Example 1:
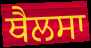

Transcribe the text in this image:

ਥੈਲਸਾ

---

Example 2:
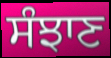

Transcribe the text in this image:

ਸੰਝਾਣ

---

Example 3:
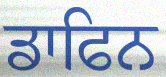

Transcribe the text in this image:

ਡਾਫਿਨ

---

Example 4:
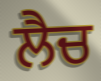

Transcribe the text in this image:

ਲੈਚ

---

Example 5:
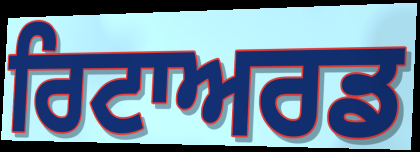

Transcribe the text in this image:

ਰਿਟਾਅਰਡ